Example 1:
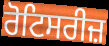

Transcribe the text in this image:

ਰੋਟਿਸਰੀਜ਼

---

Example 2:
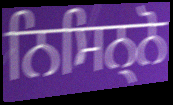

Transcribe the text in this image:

ਨਿਸਿਨ੍ਨੋ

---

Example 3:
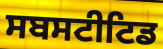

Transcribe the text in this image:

ਸਬਸਟੀਟਿਡ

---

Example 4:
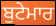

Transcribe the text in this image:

ਬੁਟੇਮਾਰ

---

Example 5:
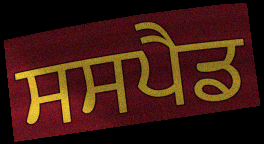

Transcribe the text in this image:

ਸਸਪੈਡ